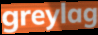
greylag